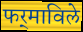
फर्माविले